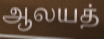
ஆலயத்